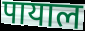
पायाल